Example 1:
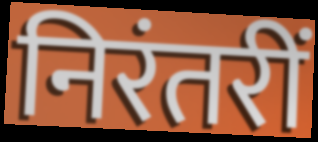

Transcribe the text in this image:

निरंतरीं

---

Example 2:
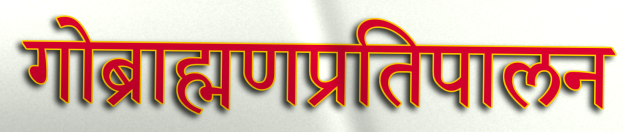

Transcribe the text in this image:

गोब्राह्मणप्रतिपालन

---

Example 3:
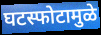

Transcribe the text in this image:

घटस्फोटामुळे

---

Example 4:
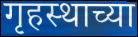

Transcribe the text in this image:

गृहस्थाच्या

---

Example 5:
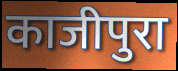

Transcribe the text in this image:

काजीपुरा